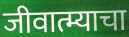
जीवात्म्याचा